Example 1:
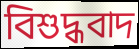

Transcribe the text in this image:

বিশুদ্ধবাদ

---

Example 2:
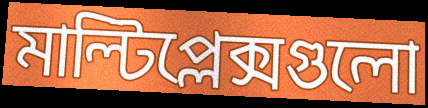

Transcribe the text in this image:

মাল্টিপ্লেক্সগুলো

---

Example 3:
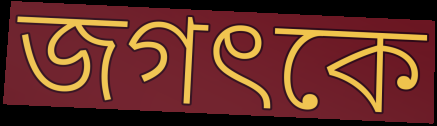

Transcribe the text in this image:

জগৎকে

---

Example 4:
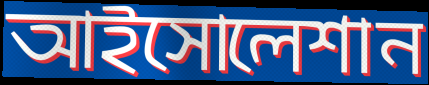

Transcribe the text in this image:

আইসোলেশান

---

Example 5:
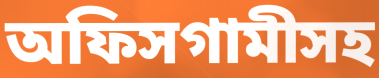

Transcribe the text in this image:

অফিসগামীসহ